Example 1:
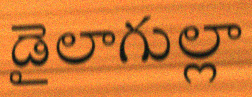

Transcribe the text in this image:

డైలాగుల్లా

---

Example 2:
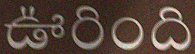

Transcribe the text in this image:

ఊరింది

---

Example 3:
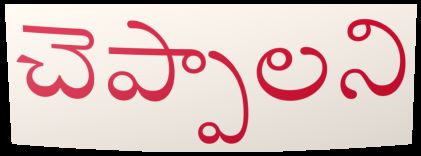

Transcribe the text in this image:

చెప్పాలని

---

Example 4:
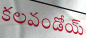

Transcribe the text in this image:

కలవండోయ్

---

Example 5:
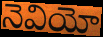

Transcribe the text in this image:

నెవియో